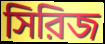
সিরিজ